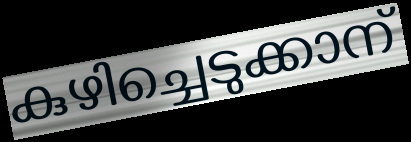
കുഴിച്ചെടുക്കാന്